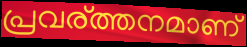
പ്രവര്ത്തനമാണ്